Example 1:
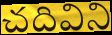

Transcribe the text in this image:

చదివిని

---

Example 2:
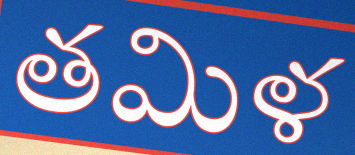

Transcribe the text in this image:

తమిళ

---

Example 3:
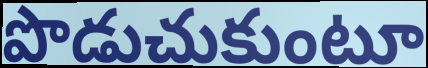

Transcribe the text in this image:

పొడుచుకుంటూ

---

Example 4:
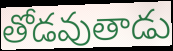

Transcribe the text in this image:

తోడవుతాడు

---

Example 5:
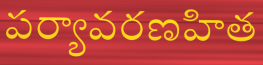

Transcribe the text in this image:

పర్యావరణహిత